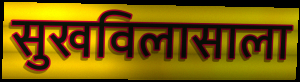
सुखविलासाला